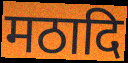
मठादि